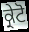
ਕ੍ਰੇਟੋ